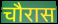
चौरास